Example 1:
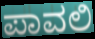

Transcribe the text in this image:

ಪಾವಲಿ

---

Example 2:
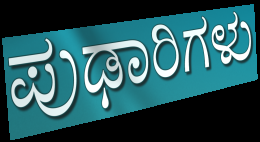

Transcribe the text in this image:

ಪುಢಾರಿಗಳು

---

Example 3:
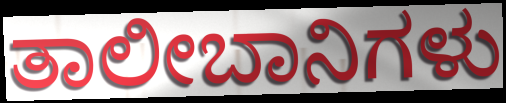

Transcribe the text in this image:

ತಾಲೀಬಾನಿಗಳು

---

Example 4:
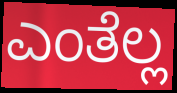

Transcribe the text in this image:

ಎಂತೆಲ್ಲ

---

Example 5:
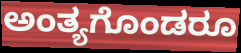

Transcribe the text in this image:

ಅಂತ್ಯಗೊಂಡರೂ